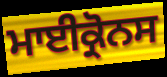
ਮਾਈਕ੍ਰੋਨਸ